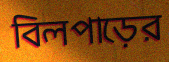
বিলপাড়ের